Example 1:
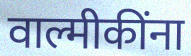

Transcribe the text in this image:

वाल्मीकींना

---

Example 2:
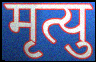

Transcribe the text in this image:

मृत्यु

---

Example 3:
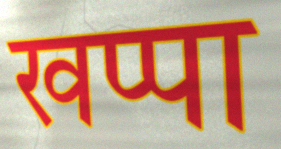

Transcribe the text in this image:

खप्पा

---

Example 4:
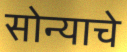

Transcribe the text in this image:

सोन्याचे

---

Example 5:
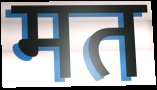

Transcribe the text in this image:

मत